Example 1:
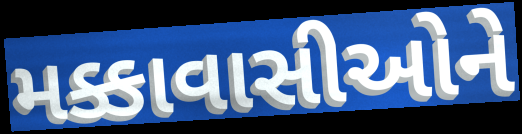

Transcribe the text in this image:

મક્કાવાસીઓને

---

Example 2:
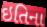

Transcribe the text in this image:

ઇતિના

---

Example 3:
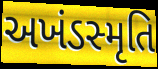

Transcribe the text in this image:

અખંડસ્મૃતિ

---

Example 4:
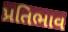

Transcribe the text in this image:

પ્રતિભાવ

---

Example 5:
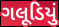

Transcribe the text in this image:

ગલૂડિયું